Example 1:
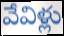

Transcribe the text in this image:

వేవిళ్లు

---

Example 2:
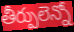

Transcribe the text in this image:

తీర్పులెన్నో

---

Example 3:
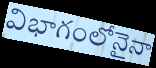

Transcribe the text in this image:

విభాగంలోనైనా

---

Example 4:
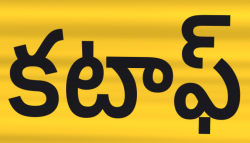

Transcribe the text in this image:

కటాఫ్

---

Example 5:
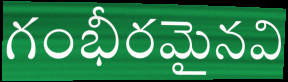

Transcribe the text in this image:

గంభీరమైనవి